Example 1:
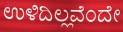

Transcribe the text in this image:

ಉಳಿದಿಲ್ಲವೆಂದೇ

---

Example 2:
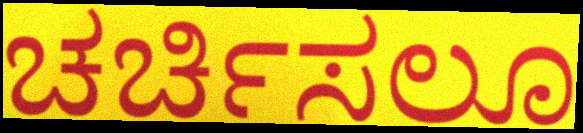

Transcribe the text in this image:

ಚರ್ಚಿಸಲೂ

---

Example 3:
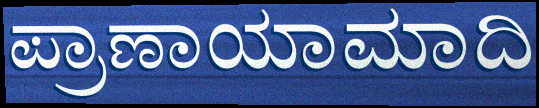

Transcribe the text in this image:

ಪ್ರಾಣಾಯಾಮಾದಿ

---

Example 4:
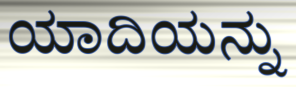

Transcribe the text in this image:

ಯಾದಿಯನ್ನು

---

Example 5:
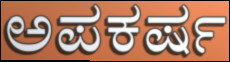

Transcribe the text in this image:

ಅಪಕರ್ಷ